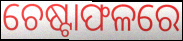
ଚେଷ୍ଟାଫଳରେ